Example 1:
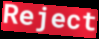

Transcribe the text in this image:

Reject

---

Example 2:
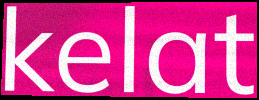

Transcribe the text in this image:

kelat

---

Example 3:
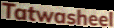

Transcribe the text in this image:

Tatwasheel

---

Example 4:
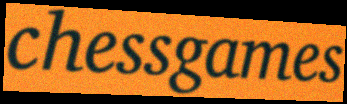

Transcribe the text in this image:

chessgames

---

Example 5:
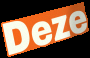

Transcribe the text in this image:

Deze